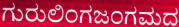
ಗುರುಲಿಂಗಜಂಗಮದ